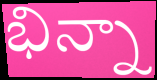
భిన్నా